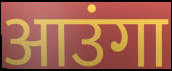
आउंगा